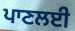
ਪਾਣਲਈ